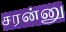
சரன்னு